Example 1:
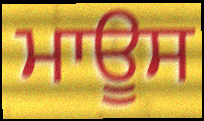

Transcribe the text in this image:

ਮਾਊਸ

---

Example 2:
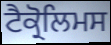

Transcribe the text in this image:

ਟੈਕ੍ਰੋਲਿਮਸ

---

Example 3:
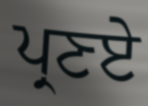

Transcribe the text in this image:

ਪ੍ਰਣਏ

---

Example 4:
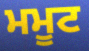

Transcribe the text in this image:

ਮਮੂਟ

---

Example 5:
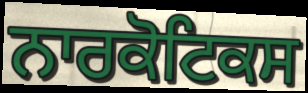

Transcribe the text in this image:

ਨਾਰਕੋਟਿਕਸ